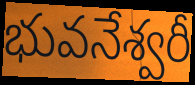
భువనేశ్వరీ